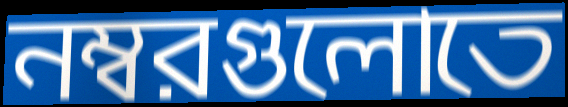
নম্বরগুলোতে